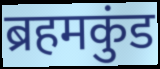
ब्रहमकुंड